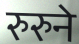
रुरुने